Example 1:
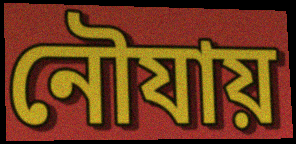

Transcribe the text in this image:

নৌযায়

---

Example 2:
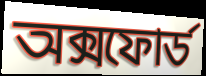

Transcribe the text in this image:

অক্সফোৰ্ড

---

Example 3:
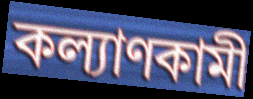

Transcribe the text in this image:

কল্যাণকামী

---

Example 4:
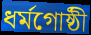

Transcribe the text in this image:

ধৰ্মগোষ্ঠী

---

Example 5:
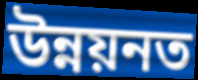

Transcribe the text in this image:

উন্নয়নত